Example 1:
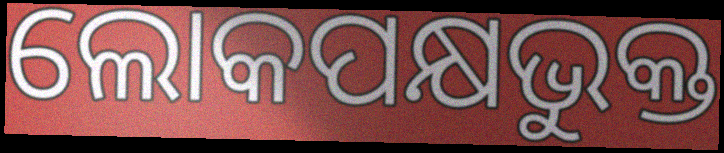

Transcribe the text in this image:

ଲୋକପକ୍ଷଭୁକ୍ତ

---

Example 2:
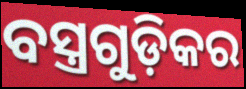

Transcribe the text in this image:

ବସ୍ତ୍ରଗୁଡ଼ିକର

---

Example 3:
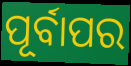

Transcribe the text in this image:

ପୂର୍ବାପର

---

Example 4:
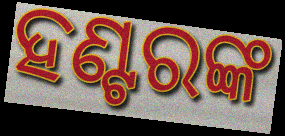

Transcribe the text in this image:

ହଣ୍ଟରଙ୍କ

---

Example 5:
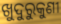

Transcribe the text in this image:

ଖୁଦୁରୁକୁଣୀ